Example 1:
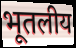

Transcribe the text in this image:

भूतलीय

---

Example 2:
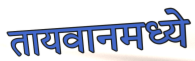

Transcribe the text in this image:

तायवानमध्ये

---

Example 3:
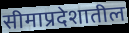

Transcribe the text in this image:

सीमाप्रदेशातील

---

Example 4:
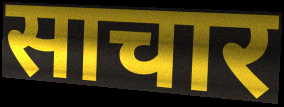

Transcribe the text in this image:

साचार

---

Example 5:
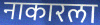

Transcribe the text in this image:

नाकारला